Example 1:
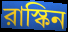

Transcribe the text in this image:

রাস্কিন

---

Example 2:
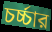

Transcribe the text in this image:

চর্চ্চার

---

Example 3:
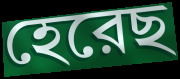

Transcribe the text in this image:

হেরেছ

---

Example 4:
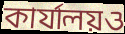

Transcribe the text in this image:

কার্যালয়ও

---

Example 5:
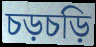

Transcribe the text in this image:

চড়চড়ি